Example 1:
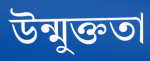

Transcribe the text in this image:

উন্মুক্ততা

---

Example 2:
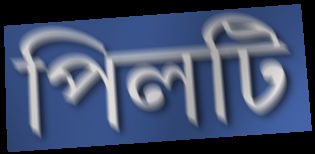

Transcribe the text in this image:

পিলটি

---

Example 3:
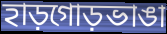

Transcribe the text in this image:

হাড়গোড়ভাঙা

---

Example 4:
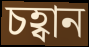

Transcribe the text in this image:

চহ্বান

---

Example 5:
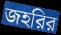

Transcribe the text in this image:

জহরির